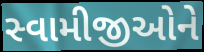
સ્વામીજીઓને